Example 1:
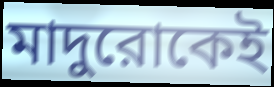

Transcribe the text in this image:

মাদুরোকেই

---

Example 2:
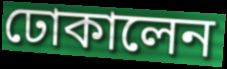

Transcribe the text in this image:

ঢোকালেন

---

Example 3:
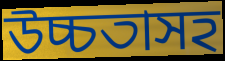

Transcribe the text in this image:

উচ্চতাসহ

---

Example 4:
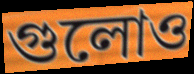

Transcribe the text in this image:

গুলোও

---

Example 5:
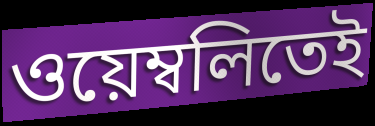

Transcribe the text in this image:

ওয়েম্বলিতেই